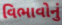
વિભાવોનું